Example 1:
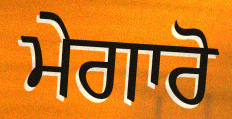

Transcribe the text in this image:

ਮੇਗਾਰੋ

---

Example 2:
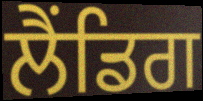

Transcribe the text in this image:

ਲੈਂਡਿਗ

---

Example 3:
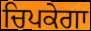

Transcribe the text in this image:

ਚਿਪਕੇਗਾ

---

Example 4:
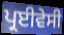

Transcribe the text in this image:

ਪ੍ਰਈਵੇਸੀ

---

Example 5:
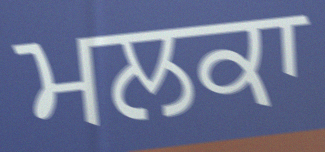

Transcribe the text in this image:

ਮਲਕਾ